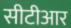
सीटीआर